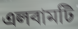
এলবামটি